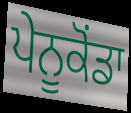
ਪੇਨੂਕੋਂਡਾ